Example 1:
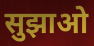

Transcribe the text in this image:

सुझाओ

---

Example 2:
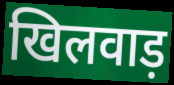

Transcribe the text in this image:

खिलवाड़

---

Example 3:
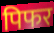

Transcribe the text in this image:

पिफर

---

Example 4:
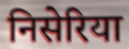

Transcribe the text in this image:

निसेरिया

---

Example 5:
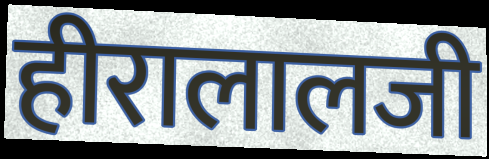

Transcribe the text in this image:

हीरालालजी